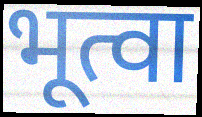
भूत्वा